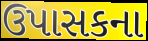
ઉપાસકના